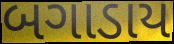
બગાડાય